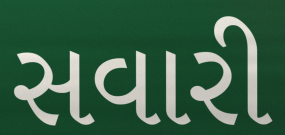
સવારી